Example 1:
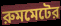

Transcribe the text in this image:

রুমমেটের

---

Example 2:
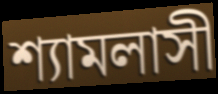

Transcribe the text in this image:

শ্যামলাসী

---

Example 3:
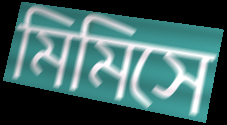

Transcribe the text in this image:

মিমিসে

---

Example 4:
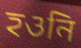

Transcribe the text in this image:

হওনি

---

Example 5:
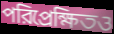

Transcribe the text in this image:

পরিপ্রেক্ষিতও